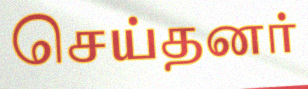
செய்தனர்